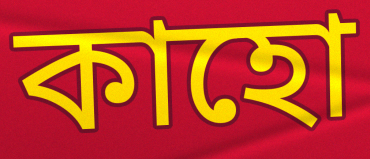
কাহো